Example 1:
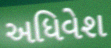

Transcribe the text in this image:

અધિવેશ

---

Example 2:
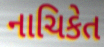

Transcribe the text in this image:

નાચિકેત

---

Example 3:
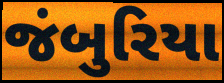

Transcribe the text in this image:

જંબુરિયા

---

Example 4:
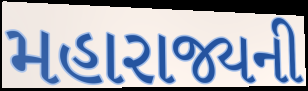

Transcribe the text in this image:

મહારાજ્યની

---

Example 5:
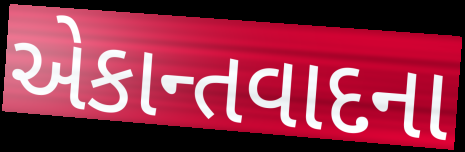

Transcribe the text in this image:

એકાન્તવાદના